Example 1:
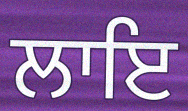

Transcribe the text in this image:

ਲਾਇ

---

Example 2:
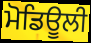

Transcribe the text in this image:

ਮੋਡਿਊਲੀ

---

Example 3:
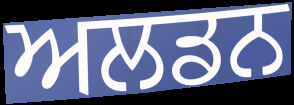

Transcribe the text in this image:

ਅਲਡਨ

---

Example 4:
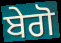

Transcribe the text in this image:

ਬੇਗੋ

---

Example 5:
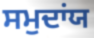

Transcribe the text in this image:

ਸਮੁਦਾਂਯ